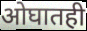
ओघातही